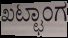
ಖಟ್ಟಾಂಗ